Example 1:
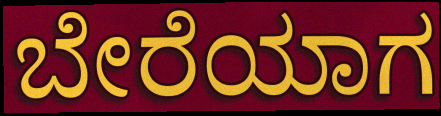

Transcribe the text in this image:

ಬೇರೆಯಾಗ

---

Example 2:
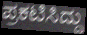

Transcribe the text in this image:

ಪ್ರಕಟಿಸಿದ್ದು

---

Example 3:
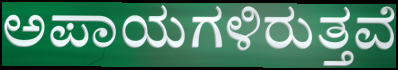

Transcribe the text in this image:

ಅಪಾಯಗಳಿರುತ್ತವೆ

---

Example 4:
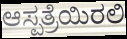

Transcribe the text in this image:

ಆಸ್ಪತ್ರೆಯಿರಲಿ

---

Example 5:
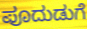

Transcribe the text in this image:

ಪೂದುಡುಗೆ